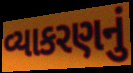
વ્યાકરણનું